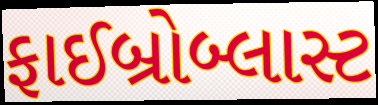
ફાઈબ્રોબ્લાસ્ટ